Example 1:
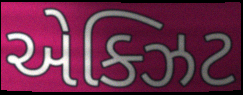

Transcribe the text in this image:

એક્ઝિટ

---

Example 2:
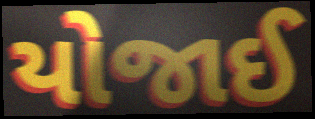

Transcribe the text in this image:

યોજાઈ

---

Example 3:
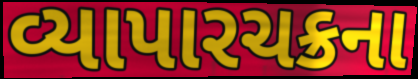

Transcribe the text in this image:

વ્યાપારચક્રના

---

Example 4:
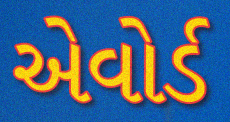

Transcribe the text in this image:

એવોર્ડ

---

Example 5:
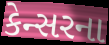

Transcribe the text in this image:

કેન્સરના